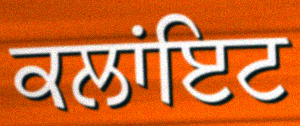
ਕਲਾਂਇਟ